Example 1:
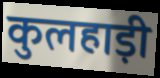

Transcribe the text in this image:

कुलहाड़ी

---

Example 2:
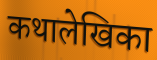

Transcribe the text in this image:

कथालेखिका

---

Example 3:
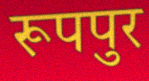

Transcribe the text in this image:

रूपपुर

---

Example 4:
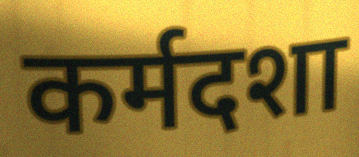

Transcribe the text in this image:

कर्मदशा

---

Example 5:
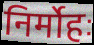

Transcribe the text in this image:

निर्मोहः